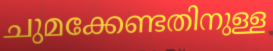
ചുമക്കേണ്ടതിനുള്ള